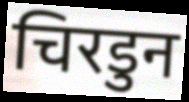
चिरडुन